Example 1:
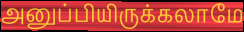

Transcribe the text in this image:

அனுப்பியிருக்கலாமே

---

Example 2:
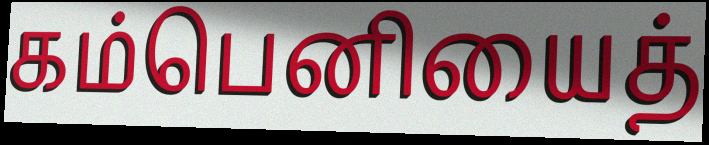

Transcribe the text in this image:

கம்பெனியைத்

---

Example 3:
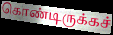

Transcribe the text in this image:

கொண்டிருக்கச்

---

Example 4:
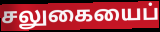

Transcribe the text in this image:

சலுகையைப்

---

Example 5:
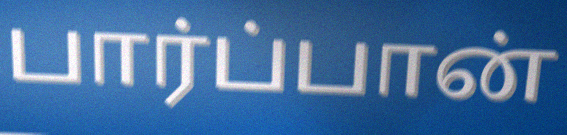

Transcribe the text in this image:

பார்ப்பான்